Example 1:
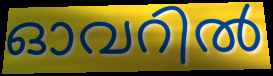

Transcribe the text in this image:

ഓവറിൽ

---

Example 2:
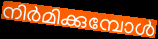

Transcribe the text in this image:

നിർമിക്കുമ്പോൾ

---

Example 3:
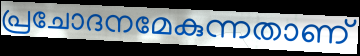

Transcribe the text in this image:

പ്രചോദനമേകുന്നതാണ്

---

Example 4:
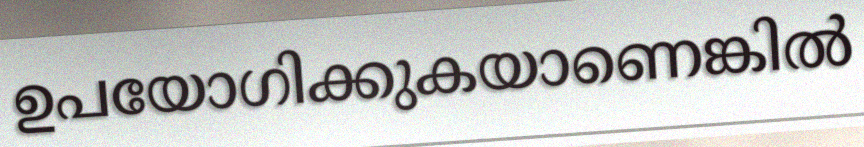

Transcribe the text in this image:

ഉപയോഗിക്കുകയാണെങ്കിൽ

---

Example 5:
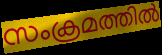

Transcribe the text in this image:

സംക്രമത്തിൽ